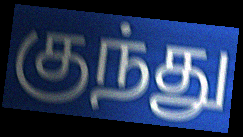
குந்து